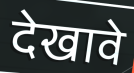
देखावे